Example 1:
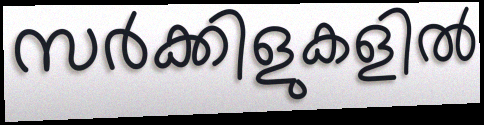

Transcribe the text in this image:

സർക്കിളുകളിൽ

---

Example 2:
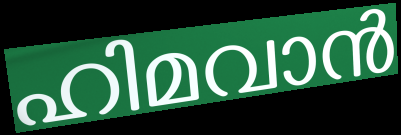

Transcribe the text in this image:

ഹിമവാൻ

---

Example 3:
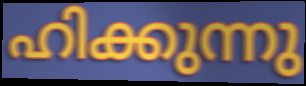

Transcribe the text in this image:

ഹിക്കുന്നു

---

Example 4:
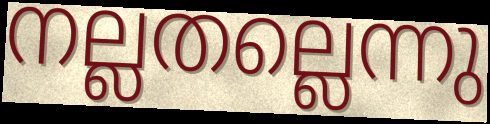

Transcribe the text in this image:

നല്ലതല്ലെന്നു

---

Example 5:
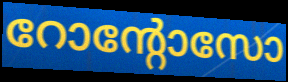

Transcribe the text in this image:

റോന്റോസോ